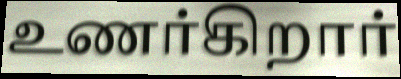
உணர்கிறார்